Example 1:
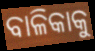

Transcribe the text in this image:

ବାଳିକାକୁ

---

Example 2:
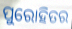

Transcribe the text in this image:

ପୁରୋହିତର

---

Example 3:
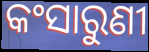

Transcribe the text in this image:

କଂସାରୁଣୀ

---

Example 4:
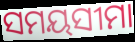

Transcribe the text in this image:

ସମୟସୀମା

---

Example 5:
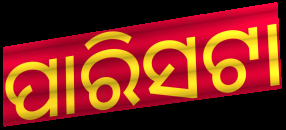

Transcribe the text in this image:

ପାରିସଟା